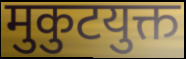
मुकुटयुक्त